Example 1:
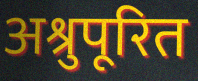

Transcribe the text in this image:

अश्रुपूरित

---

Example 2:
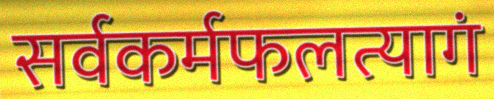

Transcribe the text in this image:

सर्वकर्मफलत्यागं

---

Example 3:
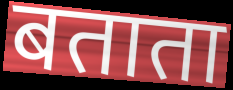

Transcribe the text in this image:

बताता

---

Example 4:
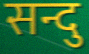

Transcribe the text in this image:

सन्दु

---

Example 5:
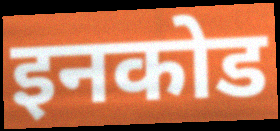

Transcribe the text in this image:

इनकोड